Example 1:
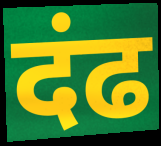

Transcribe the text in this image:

दंढ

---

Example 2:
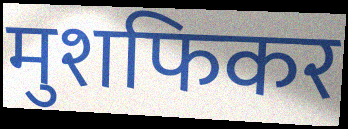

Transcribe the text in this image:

मुशफिकर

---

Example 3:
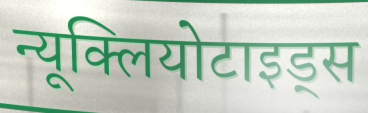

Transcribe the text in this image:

न्यूक्लियोटाइड्स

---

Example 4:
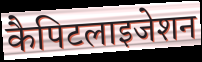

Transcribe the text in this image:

कैपिटलाइजेशन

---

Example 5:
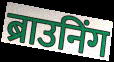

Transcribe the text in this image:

ब्राउनिंग